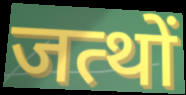
जत्थों